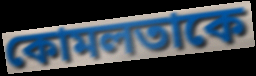
কোমলতাকে